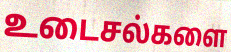
உடைசல்களை